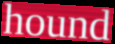
hound